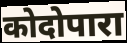
कोदोपारा